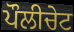
ਪੌਲੀਚੇਟ